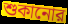
শুকানোর